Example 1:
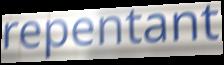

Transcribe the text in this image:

repentant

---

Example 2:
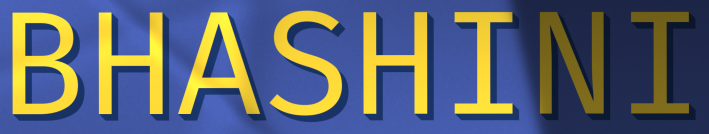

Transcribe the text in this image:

BHASHINI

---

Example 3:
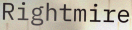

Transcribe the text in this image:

Rightmire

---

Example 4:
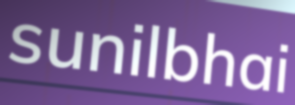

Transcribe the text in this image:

sunilbhai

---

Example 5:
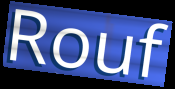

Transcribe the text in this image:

Rouf